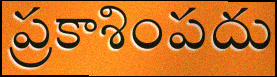
ప్రకాశింపదు